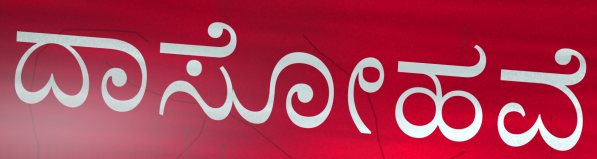
ದಾಸೋಹವೆ